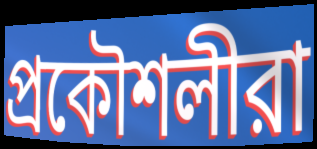
প্রকৌশলীরা